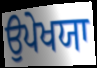
ਉਪੇਖਯਾ